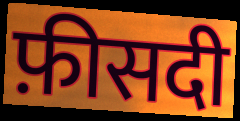
फ़ीसदी